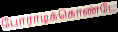
போராடிக்கொண்டே